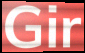
Gir